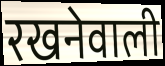
रखनेवाली